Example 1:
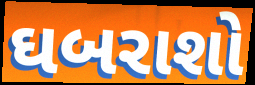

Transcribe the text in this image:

ઘબરાશો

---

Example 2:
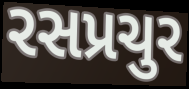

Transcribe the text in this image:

રસપ્રચુર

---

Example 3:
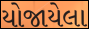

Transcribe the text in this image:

યોજાયેલા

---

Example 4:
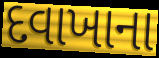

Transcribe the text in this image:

દવાખાના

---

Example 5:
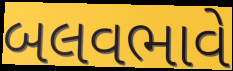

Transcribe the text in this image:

બલવભાવે